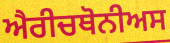
ਐਰੀਚਥੋਨੀਅਸ